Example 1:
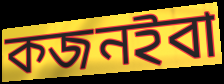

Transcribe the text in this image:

কজনইবা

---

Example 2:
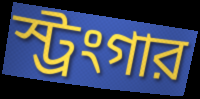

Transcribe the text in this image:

স্ট্রংগার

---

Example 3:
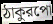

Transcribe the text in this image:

ঠাকুরপো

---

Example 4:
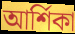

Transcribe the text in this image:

আর্শিকা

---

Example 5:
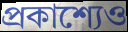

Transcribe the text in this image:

প্রকাশ্যেও